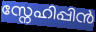
സ്നേഹിപ്പിൻ